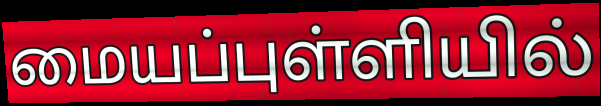
மையப்புள்ளியில்